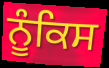
ਨੂੰਕਿਸ